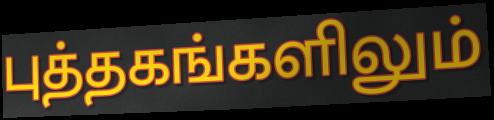
புத்தகங்களிலும்